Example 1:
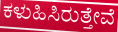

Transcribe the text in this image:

ಕಳುಹಿಸಿರುತ್ತೇವೆ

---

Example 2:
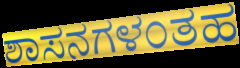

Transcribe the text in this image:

ಶಾಸನಗಳಂತಹ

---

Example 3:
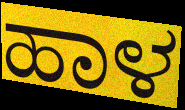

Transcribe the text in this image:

ಹಾಳ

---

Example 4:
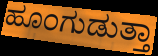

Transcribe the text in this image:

ಹೂಂಗುಡುತ್ತಾ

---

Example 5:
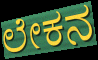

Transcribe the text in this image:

ಲೇಕನ